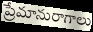
ప్రేమానురాగాలు